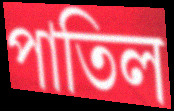
পাতিল